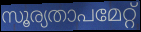
സൂര്യതാപമേറ്റ്